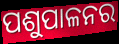
ପଶୁପାଳନର